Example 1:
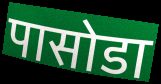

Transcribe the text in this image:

पासोडा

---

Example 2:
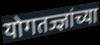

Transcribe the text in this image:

योगतज्ज्ञांच्या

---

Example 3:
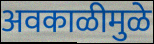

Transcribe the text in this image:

अवकाळीमुळे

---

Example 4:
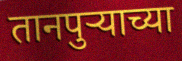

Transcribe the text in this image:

तानपुऱ्याच्या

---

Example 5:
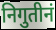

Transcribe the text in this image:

निगुतीनं